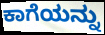
ಕಾಗೆಯನ್ನು